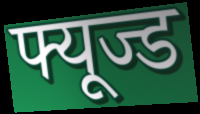
फ्यूज्ड